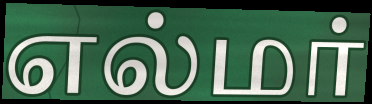
எல்மர்